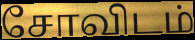
சோவிடம்